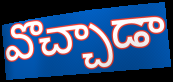
వొచ్చాడా